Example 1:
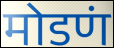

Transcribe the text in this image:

मोडणं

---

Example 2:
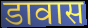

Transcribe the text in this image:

डावास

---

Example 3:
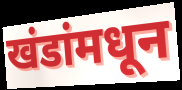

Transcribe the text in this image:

खंडांमधून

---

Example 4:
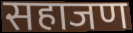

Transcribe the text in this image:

सहाजण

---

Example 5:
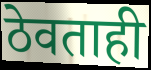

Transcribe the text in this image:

ठेवताही